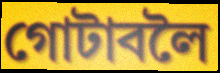
গোটাবলৈ